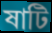
ষাটি